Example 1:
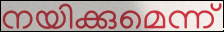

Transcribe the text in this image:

നയിക്കുമെന്ന്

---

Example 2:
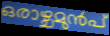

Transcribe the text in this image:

ഒരാഴ്ചമുൻപ്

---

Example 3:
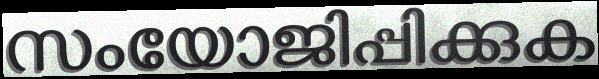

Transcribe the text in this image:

സംയോജിപ്പിക്കുക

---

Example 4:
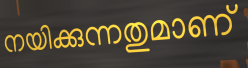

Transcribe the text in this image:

നയിക്കുന്നതുമാണ്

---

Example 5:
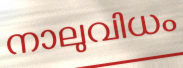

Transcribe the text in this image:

നാലുവിധം